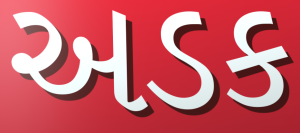
અડક